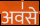
अव॑से